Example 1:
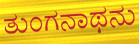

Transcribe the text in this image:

ತುಂಗನಾಥನು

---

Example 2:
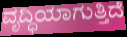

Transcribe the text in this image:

ವೃದ್ಧಿಯಾಗುತ್ತಿದೆ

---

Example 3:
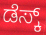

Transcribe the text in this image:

ಡೆಸ್ಕ್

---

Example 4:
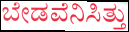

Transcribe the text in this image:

ಬೇಡವೆನಿಸಿತ್ತು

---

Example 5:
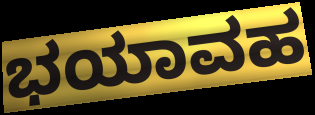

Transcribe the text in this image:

ಭಯಾವಹ